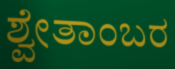
ಶ್ವೇತಾಂಬರ